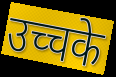
उच्चके